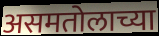
असमतोलाच्या